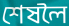
শেষলৈ